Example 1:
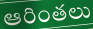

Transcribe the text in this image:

ఆరింతలు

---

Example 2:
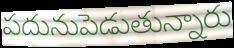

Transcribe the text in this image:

పదునుపెడుతున్నారు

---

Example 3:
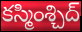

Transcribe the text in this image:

కస్మింశ్చిద్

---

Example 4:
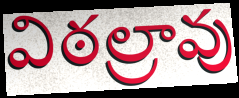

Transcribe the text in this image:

విఠల్రావు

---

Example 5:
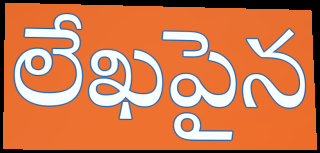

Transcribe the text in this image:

లేఖపైన